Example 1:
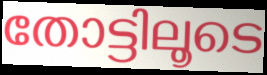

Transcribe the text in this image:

തോട്ടിലൂടെ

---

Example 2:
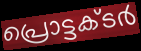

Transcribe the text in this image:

പ്രൊട്ടക്ടർ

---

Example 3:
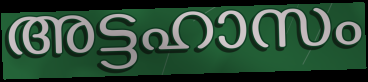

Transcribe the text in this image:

അട്ടഹാസം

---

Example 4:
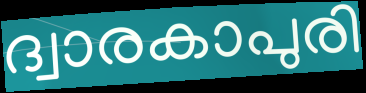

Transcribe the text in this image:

ദ്വാരകാപുരി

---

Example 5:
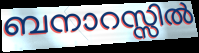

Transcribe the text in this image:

ബനാറസ്സിൽ